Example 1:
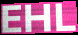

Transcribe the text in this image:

EHL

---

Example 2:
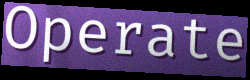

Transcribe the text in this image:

Operate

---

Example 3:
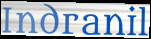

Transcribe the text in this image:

Indranil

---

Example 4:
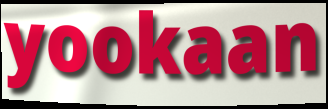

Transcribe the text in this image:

yookaan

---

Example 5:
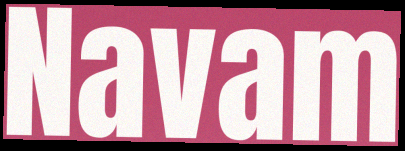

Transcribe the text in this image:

Navam